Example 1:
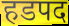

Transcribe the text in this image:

हडपद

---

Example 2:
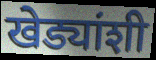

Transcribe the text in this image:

खेड्यांशी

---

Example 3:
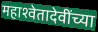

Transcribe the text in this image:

महाश्वेतादेवींच्या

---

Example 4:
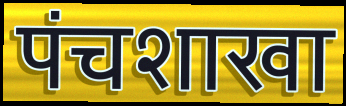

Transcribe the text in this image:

पंचशाखा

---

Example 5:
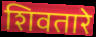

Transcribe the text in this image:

शिवतारे